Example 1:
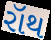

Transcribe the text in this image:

રૉથ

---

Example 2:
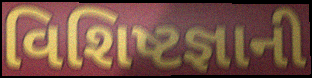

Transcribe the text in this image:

વિશિષ્ટજ્ઞાની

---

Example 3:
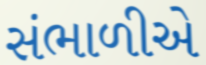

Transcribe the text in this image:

સંભાળીએ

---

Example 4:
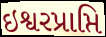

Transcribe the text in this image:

ઇશ્વરપ્રાપ્તિ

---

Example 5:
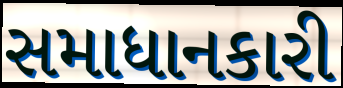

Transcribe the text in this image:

સમાધાનકારી